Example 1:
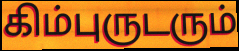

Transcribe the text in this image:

கிம்புருடரும்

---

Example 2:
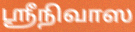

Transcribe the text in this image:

ஸ்ரீநிவாஸ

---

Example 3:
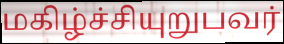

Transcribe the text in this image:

மகிழ்ச்சியுறுபவர்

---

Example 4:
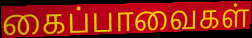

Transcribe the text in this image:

கைப்பாவைகள்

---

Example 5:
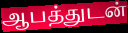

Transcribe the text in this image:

ஆபத்துடன்